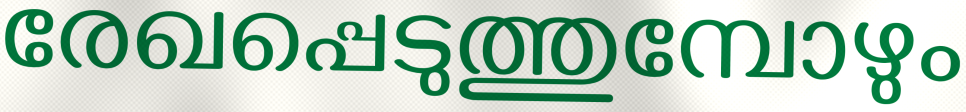
രേഖപ്പെടുത്തുമ്പോഴും